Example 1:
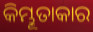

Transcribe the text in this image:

କିମ୍ଭୂତାକାର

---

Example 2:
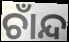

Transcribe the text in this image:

ଚାଁନ୍ଦ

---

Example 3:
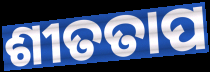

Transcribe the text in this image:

ଶୀତତାପ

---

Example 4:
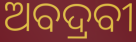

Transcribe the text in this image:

ଅବଦ୍ରବୀ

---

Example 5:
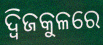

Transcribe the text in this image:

ଦ୍ୱିଜକୁଳରେ